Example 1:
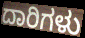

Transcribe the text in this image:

ದಾರಿಗಳು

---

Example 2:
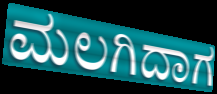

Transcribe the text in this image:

ಮಲಗಿದಾಗ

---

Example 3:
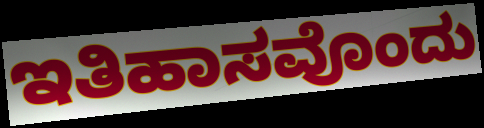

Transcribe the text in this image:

ಇತಿಹಾಸವೊಂದು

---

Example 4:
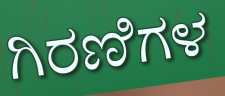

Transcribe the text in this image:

ಗಿರಣಿಗಳ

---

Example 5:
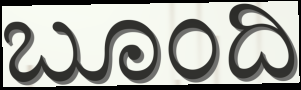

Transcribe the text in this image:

ಬೂಂದಿ